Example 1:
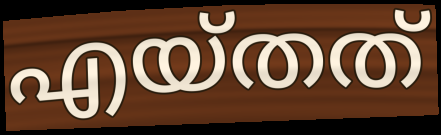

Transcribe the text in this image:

എയ്തത്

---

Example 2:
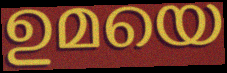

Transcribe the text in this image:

ഉമയെ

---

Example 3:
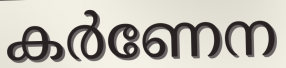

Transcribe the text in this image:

കർണേന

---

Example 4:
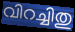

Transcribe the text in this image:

വിറച്ചിതു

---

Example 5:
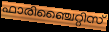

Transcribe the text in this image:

ഫാരിഞ്ചൈറ്റിസ്